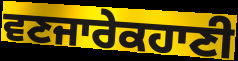
ਵਣਜਾਰੇਕਹਾਣੀ